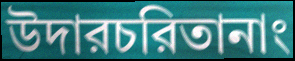
উদারচরিতানাং